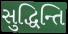
સુદ્ધિન્તિ